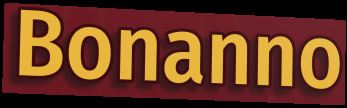
Bonanno